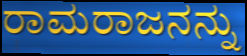
ರಾಮರಾಜನನ್ನು